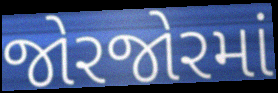
જોરજોરમાં